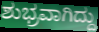
ಶುಭ್ರವಾಗಿದ್ದು